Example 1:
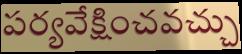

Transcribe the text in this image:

పర్యవేక్షించవచ్చు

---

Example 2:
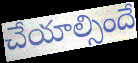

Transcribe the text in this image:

చేయాల్సిందే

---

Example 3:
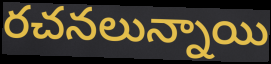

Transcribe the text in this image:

రచనలున్నాయి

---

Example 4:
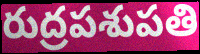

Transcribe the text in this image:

రుద్రపశుపతి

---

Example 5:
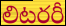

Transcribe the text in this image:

లిటరరీ